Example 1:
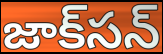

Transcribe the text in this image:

జాక్‌సన్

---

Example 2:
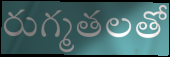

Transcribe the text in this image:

రుగ్మతలతో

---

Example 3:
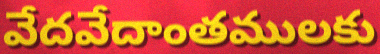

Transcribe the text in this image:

వేదవేదాంతములకు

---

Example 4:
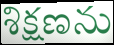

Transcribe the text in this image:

శిక్షణను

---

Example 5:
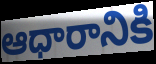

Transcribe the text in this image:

ఆధారానికి